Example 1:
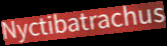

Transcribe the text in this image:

Nyctibatrachus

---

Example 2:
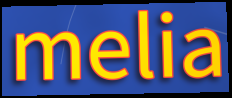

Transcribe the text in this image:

melia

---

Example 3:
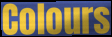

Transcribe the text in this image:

Colours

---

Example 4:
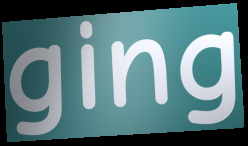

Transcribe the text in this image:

ging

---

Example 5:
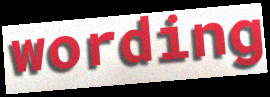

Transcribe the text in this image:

wording